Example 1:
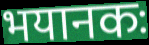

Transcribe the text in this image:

भयानकः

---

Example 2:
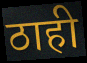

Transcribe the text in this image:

ठाही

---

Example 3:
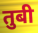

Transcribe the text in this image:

तुबी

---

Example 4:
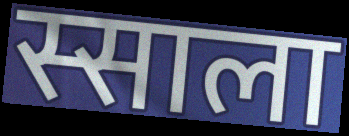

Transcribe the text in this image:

स्साला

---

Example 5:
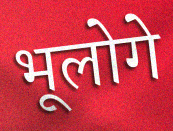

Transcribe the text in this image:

भूलोगे